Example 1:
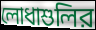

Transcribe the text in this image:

লোধাশুলির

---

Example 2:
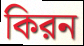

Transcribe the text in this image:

কিরন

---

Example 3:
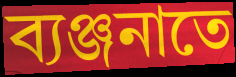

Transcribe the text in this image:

ব্যঞ্জনাতে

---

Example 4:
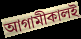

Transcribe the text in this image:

আগামীকালই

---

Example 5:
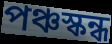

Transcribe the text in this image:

পঞ্চস্কন্ধ